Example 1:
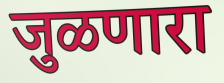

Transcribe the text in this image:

जुळणारा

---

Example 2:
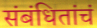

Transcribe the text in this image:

संबंधितांचं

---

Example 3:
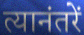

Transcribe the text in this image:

त्यानंतरें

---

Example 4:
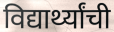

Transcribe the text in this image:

विद्यार्थ्‍यांची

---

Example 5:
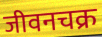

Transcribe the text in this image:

जीवनचक्र